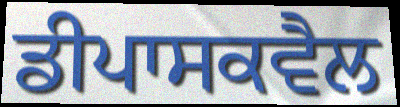
ਡੀਪਾਸਕਵੈਲ